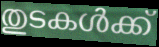
തുടകൾക്ക്